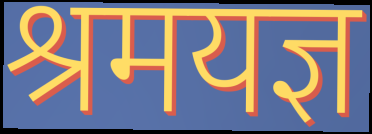
श्रमयज्ञ